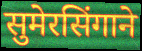
सुमेरसिंगाने